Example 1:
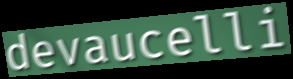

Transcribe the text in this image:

devaucelli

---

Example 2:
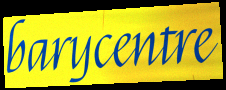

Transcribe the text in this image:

barycentre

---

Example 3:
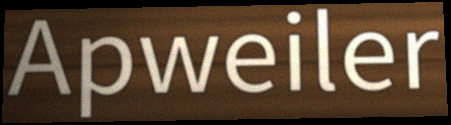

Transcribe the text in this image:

Apweiler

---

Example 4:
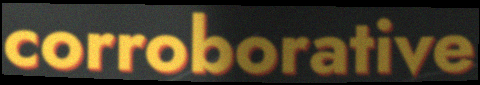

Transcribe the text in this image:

corroborative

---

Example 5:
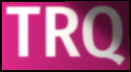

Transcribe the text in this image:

TRQ